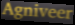
Agniveer